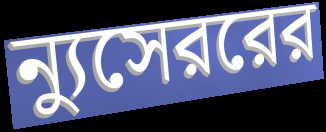
ন্যুসেররের